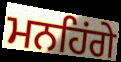
ਮਨਹਿਂਗੇ